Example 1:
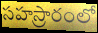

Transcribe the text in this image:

సహస్రారంలో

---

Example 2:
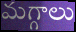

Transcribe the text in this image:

మగ్గాలు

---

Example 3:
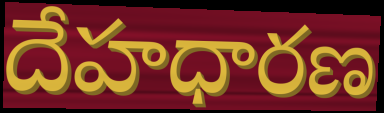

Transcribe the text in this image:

దేహధారణ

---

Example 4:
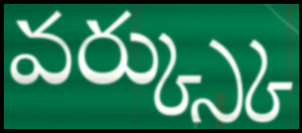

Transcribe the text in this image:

వర్క్స్కు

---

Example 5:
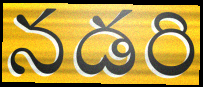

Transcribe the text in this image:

నడరి